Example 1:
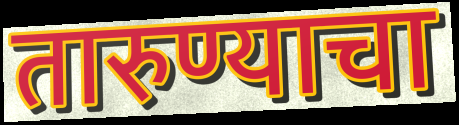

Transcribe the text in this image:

तारुण्याचा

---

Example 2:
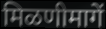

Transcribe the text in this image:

मिळणीमागें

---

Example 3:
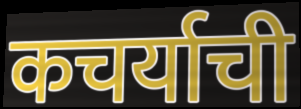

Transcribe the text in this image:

कचर्याची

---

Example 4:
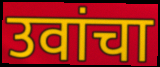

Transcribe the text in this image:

उवांचा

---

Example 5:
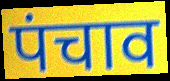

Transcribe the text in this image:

पंचाव